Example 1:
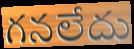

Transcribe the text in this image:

గనలేదు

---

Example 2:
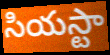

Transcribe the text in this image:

సియస్టా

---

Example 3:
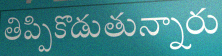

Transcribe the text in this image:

తిప్పికొడుతున్నారు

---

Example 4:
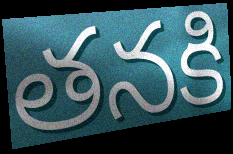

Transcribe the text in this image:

తనకి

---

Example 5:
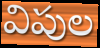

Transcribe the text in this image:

విపుల